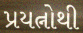
પ્રયત્નોથી